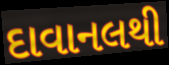
દાવાનલથી